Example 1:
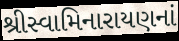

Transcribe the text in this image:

શ્રીસ્વામિનારાયણનાં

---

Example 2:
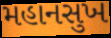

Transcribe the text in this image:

મહાનસુખ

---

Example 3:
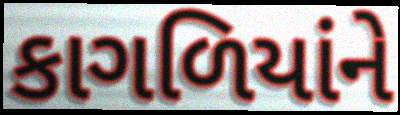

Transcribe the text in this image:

કાગળિયાંને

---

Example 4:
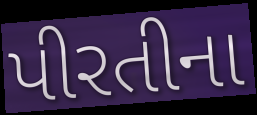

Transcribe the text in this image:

પીરતીના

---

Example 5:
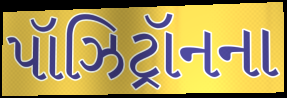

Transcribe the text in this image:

પૉઝિટ્રૉનના